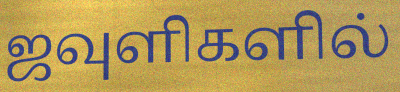
ஜவுளிகளில்